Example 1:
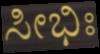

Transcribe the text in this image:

ಸೀಭಿಃ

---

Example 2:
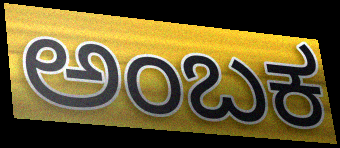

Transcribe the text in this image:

ಅಂಬಕ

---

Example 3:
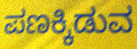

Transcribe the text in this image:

ಪಣಕ್ಕಿಡುವ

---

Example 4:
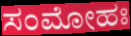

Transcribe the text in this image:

ಸಂಮೋಹಃ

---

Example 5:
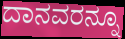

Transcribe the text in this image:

ದಾನವರನ್ನೂ